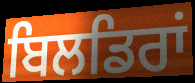
ਬਿਲਡਿਰਾਂ